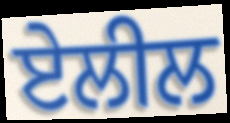
ਏਲੀਲ